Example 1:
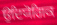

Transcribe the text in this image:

ਉਦਿਯੋਗਿਕ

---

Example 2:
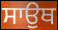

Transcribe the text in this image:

ਸਾਉਥ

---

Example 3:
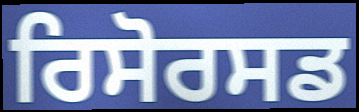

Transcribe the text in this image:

ਰਿਸੋਰਸਡ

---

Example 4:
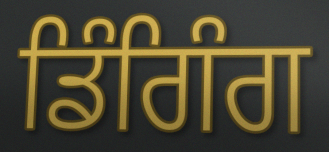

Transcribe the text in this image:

ਡਿੰਗਿੰਗ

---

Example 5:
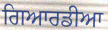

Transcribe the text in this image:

ਗਿਆਰਡੀਆ